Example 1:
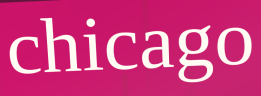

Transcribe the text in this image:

chicago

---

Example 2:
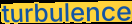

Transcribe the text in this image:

turbulence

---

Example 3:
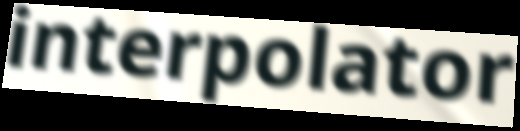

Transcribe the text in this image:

interpolator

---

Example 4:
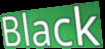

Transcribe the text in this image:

Black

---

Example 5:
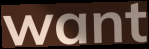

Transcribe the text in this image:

want